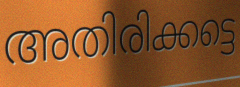
അതിരിക്കട്ടെ